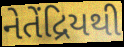
નેતેંદ્રિયથી